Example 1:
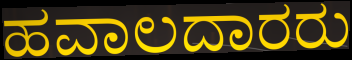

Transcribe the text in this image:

ಹವಾಲದಾರರು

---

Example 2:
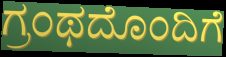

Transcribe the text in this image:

ಗ್ರಂಥದೊಂದಿಗೆ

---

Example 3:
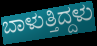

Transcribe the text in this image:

ಬಾಳುತ್ತಿದ್ದಳು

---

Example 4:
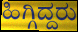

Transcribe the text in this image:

ಹಿಗ್ಗಿದ್ದರು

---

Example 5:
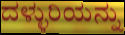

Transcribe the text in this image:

ದಳ್ಳುರಿಯನ್ನು